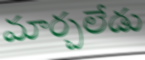
మార్చలేడు